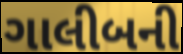
ગાલીબની